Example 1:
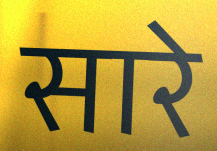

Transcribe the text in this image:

सारे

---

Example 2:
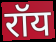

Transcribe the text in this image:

रॉय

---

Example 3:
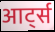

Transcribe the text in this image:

आर्ट्स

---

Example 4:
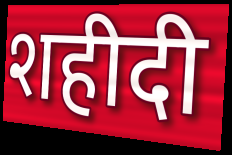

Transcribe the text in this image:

शहीदी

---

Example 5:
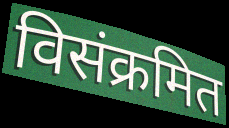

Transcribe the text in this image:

विसंक्रमित